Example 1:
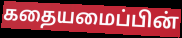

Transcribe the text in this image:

கதையமைப்பின்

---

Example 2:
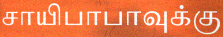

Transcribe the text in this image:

சாயிபாபாவுக்கு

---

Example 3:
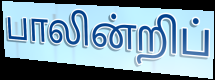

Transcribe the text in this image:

பாலின்றிப்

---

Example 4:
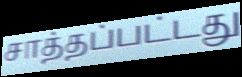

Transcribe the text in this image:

சாத்தப்பட்டது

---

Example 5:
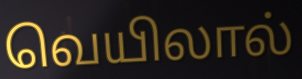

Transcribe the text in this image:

வெயிலால்